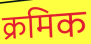
क्रमिक